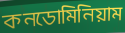
কনডোমিনিয়াম